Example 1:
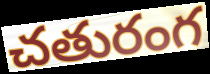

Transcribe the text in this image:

చతురంగ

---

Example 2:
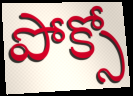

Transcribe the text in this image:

పోక్సో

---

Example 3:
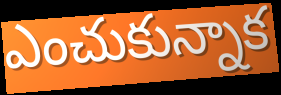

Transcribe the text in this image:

ఎంచుకున్నాక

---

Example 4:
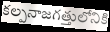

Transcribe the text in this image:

కల్పనాజగత్తులోనికి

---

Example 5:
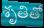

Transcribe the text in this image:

శృతితో